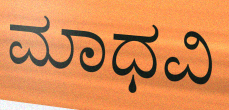
ಮಾಧವಿ